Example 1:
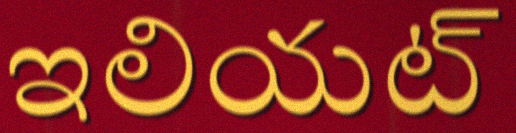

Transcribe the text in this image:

ఇలియట్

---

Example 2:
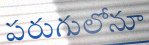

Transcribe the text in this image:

పరుగులోనూ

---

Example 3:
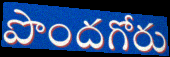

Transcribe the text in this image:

పొందగోరు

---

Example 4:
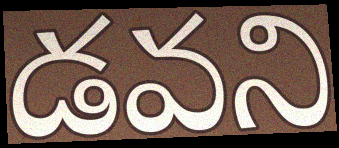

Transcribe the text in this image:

డవని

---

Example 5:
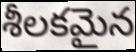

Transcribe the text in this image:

శీలకమైన